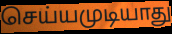
செய்யமுடியாது